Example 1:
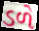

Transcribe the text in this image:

ડળે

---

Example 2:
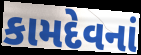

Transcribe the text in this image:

કામદેવનાં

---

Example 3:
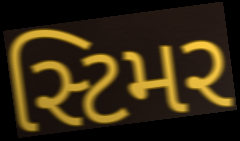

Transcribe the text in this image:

સ્ટિમર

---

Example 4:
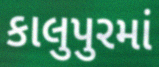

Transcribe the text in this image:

કાલુપુરમાં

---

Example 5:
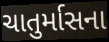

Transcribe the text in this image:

ચાતુર્માસના